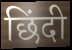
छिंदी